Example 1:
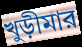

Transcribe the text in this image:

খুড়ীমার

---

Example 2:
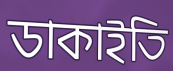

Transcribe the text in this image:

ডাকাইতি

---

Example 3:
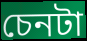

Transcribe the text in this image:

চেনটা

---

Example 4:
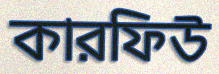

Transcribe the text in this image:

কারফিউ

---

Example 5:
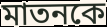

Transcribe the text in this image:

মাতনকে